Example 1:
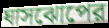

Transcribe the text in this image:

ঘাসঝোপের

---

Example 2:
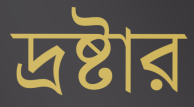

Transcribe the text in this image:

দ্রষ্টার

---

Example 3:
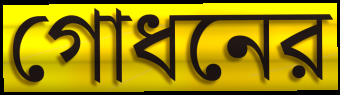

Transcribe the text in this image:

গোধনের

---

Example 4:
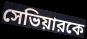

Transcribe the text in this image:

সেভিয়ারকে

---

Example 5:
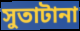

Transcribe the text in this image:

সুতাটানা